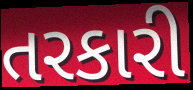
તરકારી